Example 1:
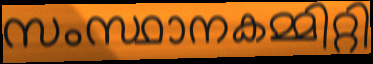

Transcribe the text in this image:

സംസ്ഥാനകമ്മിറ്റി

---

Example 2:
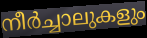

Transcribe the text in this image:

നീർച്ചാലുകളും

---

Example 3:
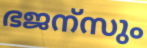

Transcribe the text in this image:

ഭജന്സും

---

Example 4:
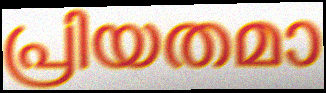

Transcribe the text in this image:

പ്രിയതമാ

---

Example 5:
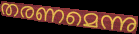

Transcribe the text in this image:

തരണമെന്നു